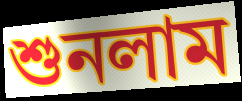
শুনলাম